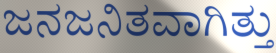
ಜನಜನಿತವಾಗಿತ್ತು